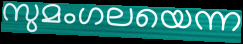
സുമംഗലയെന്ന